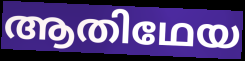
ആതിഥേയ